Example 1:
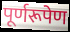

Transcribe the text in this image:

पूर्णरूपेण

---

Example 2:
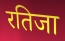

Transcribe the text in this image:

रतिजा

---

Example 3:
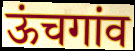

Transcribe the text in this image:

ऊंचगांव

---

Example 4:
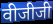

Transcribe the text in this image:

वीजीजी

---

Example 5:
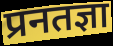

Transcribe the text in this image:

प्रनतज्ञा